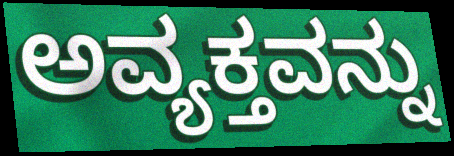
ಅವ್ಯಕ್ತವನ್ನು